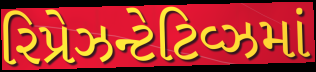
રિપ્રેઝન્ટેટિવ્ઝમાં